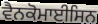
ਵੈਨਕੋਮਾਈਸਿਨ